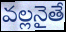
వల్లనైతే